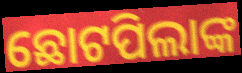
ଛୋଟପିଲାଙ୍କ